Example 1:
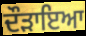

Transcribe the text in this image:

ਦੌੜਾਇਆ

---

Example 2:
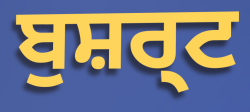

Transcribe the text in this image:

ਬੁਸ਼ਰ੍ਟ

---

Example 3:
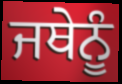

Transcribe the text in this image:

ਜਥੇਨੂੰ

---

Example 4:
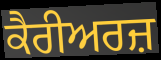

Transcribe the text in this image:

ਕੈਰੀਅਰਜ਼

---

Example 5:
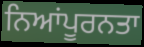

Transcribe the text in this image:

ਨਿਆਂਪੂਰਨਤਾ